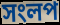
সংলপ